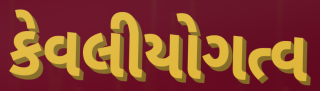
કેવલીયોગત્વ